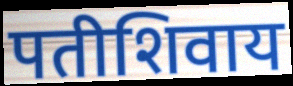
पतीशिवाय